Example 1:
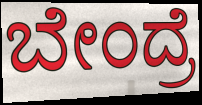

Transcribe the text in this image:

ಬೇಂದ್ರೆ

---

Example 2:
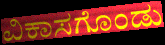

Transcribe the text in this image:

ವಿಕಾಸಗೊಂಡು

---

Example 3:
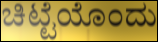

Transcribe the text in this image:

ಚಿಟ್ಟೆಯೊಂದು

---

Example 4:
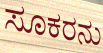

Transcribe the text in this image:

ಸೂಕರನು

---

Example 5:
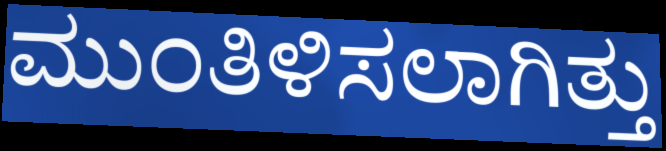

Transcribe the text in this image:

ಮುಂತಿಳಿಸಲಾಗಿತ್ತು